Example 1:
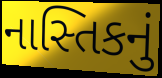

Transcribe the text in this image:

નાસ્તિકનું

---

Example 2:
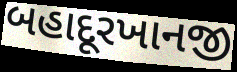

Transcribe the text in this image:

બહાદૂરખાનજી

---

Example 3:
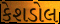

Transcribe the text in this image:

કેશડોલ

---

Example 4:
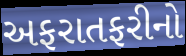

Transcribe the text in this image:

અફરાતફરીનો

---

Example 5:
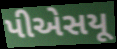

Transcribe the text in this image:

પીએસયૂ